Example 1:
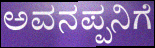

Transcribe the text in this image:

ಅವನಪ್ಪನಿಗೆ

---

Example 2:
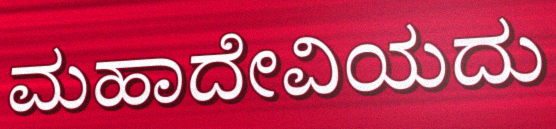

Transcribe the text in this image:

ಮಹಾದೇವಿಯದು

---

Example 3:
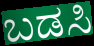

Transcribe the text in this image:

ಬಡಸಿ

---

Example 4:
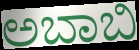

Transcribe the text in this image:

ಅಬಾಬಿ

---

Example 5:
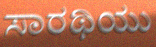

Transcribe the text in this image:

ಸಾರಥಿಯು